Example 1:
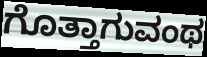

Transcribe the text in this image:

ಗೊತ್ತಾಗುವಂಥ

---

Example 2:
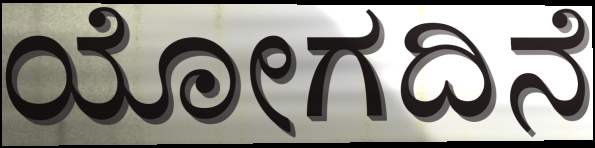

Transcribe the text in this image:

ಯೋಗದಿನೆ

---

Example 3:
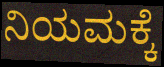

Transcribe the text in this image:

ನಿಯಮಕ್ಕೆ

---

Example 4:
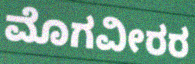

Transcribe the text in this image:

ಮೊಗವೀರರ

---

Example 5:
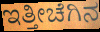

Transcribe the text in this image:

ಇತ್ತೀಚೆಗಿನ